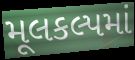
મૂલકલ્પમાં